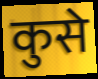
कुसे